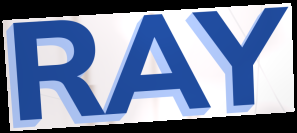
RAY